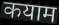
कयाम